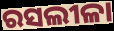
ରସଲୀଳା